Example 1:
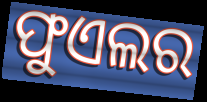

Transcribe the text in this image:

ଫୁଏଲର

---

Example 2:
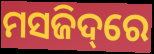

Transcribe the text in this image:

ମସଜିଦ୍‌ରେ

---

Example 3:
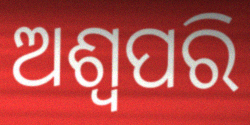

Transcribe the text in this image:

ଅଶ୍ୱପରି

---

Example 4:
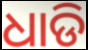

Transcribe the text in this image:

ଧାଡି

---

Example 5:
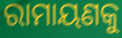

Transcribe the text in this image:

ରାମାୟଣକୁ